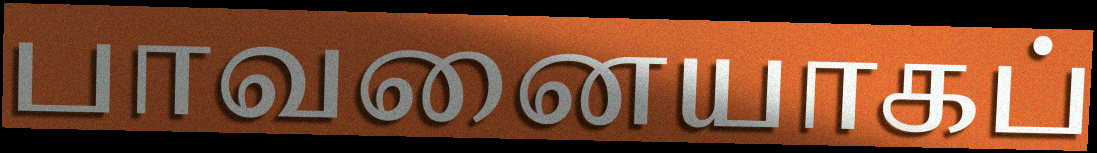
பாவனையாகப்